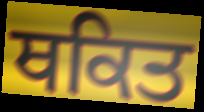
ਥਕਿਤ